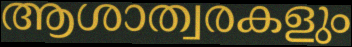
ആശാത്വരകളും